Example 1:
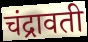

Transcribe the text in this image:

चंद्रावती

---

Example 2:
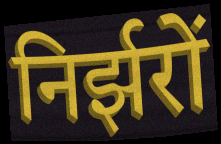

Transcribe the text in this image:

निर्झरों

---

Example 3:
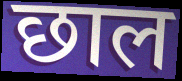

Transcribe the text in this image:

छाल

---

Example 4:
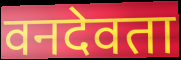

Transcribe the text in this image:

वनदेवता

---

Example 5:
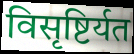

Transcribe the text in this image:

विसृष्टिर्यत